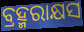
ବ୍ରହ୍ମରାକ୍ଷସ